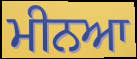
ਮੀਨਆ